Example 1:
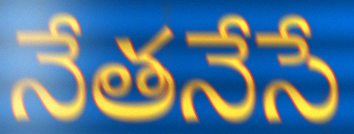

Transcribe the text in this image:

నేతనేసే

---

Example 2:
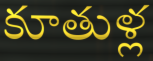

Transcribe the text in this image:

కూతుళ్ల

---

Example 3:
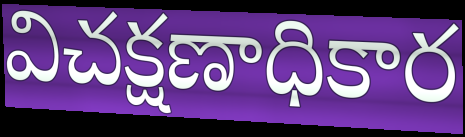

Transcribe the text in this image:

విచక్షణాధికార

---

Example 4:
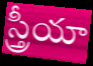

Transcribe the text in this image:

స్త్రీయా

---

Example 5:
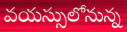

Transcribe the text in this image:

వయస్సులోనున్న